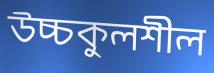
উচ্চকুলশীল